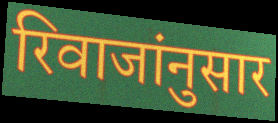
रिवाजांनुसार